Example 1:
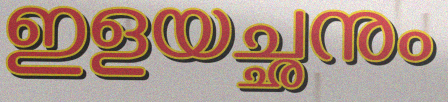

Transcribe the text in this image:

ഇളയച്ഛനും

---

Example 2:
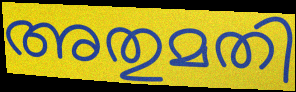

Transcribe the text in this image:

അതുമതി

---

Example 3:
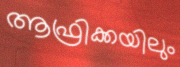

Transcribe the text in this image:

ആഫ്രിക്കയിലും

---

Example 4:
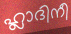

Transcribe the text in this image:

ഹ്ലാദിനീ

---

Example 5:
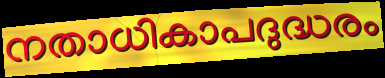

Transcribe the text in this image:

നതാധികാപദുദ്ധരം